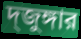
দ্জুঙ্গার